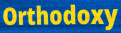
Orthodoxy